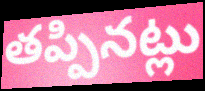
తప్పినట్లు